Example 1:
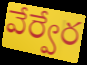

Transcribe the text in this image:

వేర్వేర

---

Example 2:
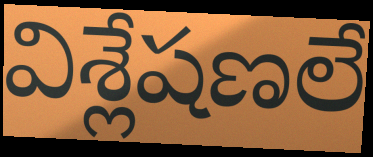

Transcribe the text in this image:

విశ్లేషణలే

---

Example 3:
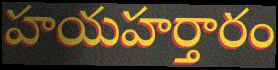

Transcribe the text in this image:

హయహర్తారం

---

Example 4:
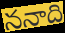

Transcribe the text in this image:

ననాది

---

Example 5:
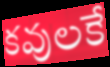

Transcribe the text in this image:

కవులకే